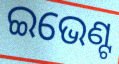
ଇଭେଣ୍ଟ